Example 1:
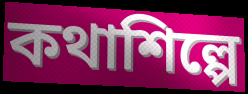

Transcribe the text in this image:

কথাশিল্পে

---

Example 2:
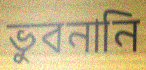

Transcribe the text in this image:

ভুবনানি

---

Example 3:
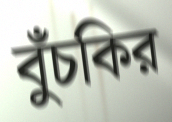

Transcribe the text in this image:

বুঁচকির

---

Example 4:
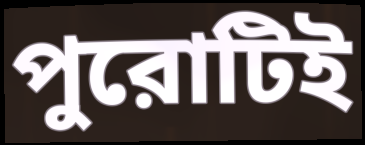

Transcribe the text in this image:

পুরোটিই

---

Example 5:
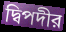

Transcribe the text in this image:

দ্বিপদীর